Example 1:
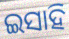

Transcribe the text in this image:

ଇସାହି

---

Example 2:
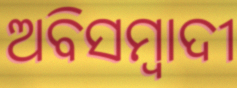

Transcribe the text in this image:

ଅବିସମ୍ବାଦୀ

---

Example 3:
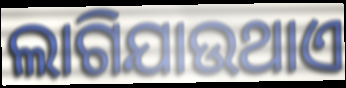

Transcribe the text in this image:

ଲାଗିଯାଉଥାଏ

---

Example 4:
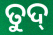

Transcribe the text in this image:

ତୁଦ୍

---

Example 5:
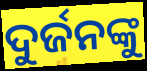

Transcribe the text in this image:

ଦୁର୍ଜନଙ୍କୁ